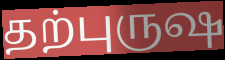
தற்புருஷ